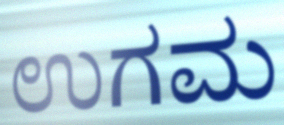
ಉಗಮ